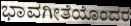
ಭಾವಗೀತೆಯೊಂದರ